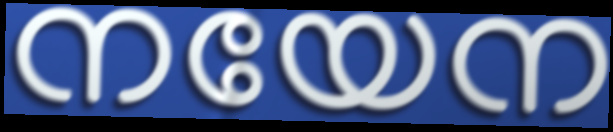
നയേന